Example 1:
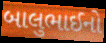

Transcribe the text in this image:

બાલુભાઈનો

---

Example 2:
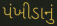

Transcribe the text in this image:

પંખીડાનું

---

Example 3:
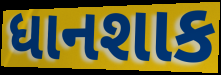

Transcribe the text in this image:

ધાનશાક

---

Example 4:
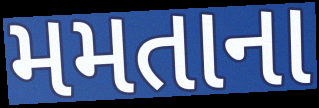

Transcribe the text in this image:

મમતાના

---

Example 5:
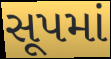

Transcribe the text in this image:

સૂપમાં